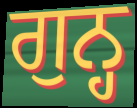
ਗੁਨ੍ਹ